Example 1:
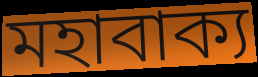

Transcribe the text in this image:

মহাবাক্য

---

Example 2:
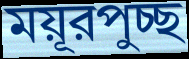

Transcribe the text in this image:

ময়ূরপুচ্ছ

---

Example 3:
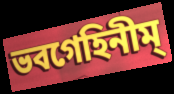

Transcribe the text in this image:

ভবগেহিনীম্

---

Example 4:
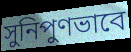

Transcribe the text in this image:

সুনিপুণভাবে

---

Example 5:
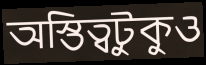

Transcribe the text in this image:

অস্তিত্বটুকুও